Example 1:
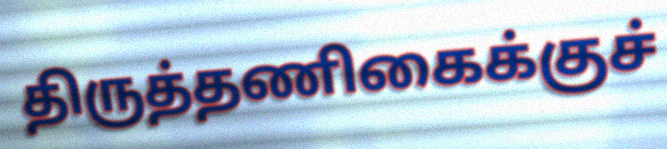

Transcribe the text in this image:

திருத்தணிகைக்குச்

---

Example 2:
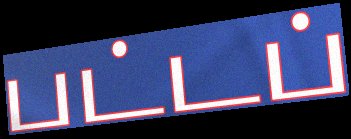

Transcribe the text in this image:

பட்டப்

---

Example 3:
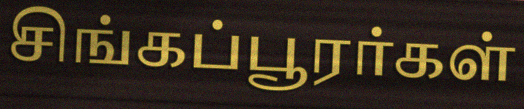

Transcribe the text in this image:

சிங்கப்பூரர்கள்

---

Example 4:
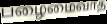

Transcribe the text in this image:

பழைமைவாத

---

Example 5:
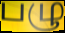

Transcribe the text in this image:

பழு